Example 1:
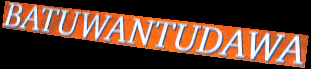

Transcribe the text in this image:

BATUWANTUDAWA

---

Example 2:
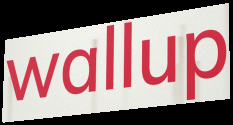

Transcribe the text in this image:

wallup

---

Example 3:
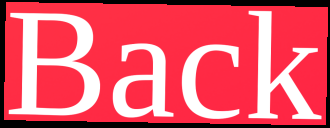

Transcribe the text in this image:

Back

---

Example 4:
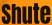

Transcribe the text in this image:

Shute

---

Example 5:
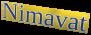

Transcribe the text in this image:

Nimavat